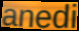
anedi